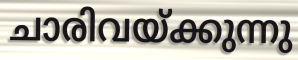
ചാരിവയ്ക്കുന്നു